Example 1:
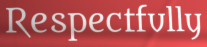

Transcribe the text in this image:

Respectfully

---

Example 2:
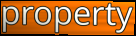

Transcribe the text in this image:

property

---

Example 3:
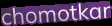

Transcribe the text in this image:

chomotkar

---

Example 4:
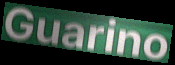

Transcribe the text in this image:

Guarino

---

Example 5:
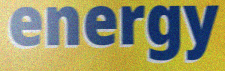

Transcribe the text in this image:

energy